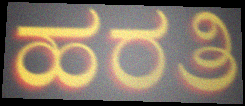
ಹರತಿ